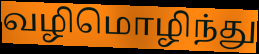
வழிமொழிந்து